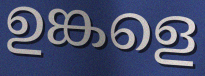
ഉങ്കളെ